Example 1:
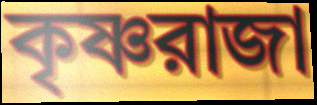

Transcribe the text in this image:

কৃষ্ণরাজা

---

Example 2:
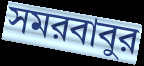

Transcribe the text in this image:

সমরবাবুর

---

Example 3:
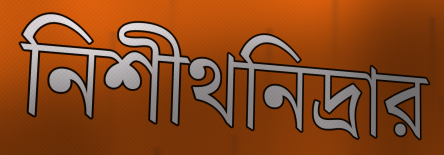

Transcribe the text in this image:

নিশীথনিদ্রার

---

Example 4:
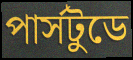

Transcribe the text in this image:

পার্সটুডে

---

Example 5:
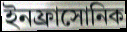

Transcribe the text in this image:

ইনফ্রাসোনিক